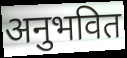
अनुभवित